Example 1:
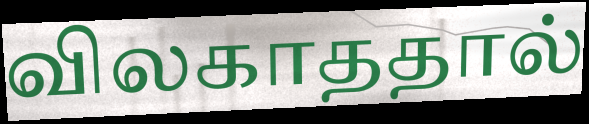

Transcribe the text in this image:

விலகாததால்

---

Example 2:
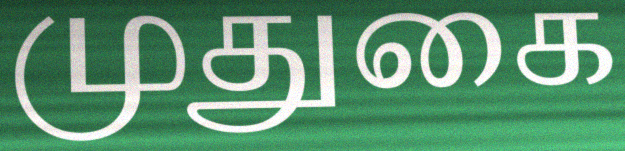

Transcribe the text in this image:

முதுகை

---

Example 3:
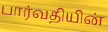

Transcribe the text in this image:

பார்வதியின்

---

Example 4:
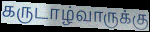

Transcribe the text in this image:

கருடாழ்வாருக்கு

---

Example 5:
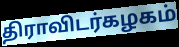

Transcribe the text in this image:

திராவிடர்கழகம்